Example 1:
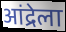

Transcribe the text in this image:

आंद्रेला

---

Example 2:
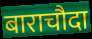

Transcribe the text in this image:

बाराचौदा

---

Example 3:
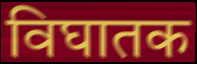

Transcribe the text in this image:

विघातक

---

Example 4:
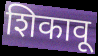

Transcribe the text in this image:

शिकावू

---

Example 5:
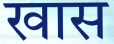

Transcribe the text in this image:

खास